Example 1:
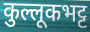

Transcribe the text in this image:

कुल्लूकभट्ट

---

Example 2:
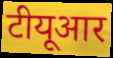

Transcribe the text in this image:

टीयूआर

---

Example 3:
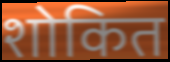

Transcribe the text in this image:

शोकित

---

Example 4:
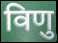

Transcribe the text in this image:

विणु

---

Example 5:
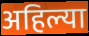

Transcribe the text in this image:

अहिल्या